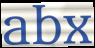
abx